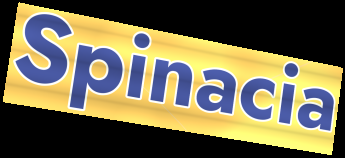
Spinacia